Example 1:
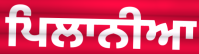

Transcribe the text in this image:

ਪਿਲਾਨੀਆ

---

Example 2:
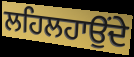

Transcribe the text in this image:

ਲਹਿਲਹਾਉਂਦੇ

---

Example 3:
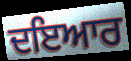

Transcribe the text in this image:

ਦਇਆਰ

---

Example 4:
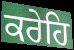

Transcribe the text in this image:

ਕਰੇਹਿ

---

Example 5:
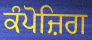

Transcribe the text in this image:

ਕੰਪੋਜ਼ਿਗ